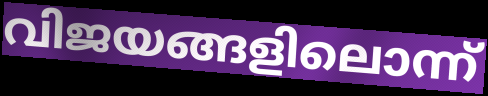
വിജയങ്ങളിലൊന്ന്